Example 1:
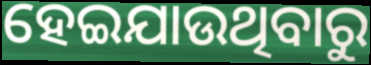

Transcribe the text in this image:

ହେଇଯାଉଥିବାରୁ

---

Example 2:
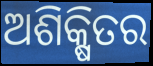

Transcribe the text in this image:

ଅଶିକ୍ଷିତର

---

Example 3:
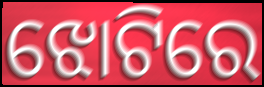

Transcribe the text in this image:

ଝୋଟିରେ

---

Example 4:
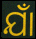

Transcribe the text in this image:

ଯାଁ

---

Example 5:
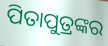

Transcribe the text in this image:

ପିତାପୁତ୍ରଙ୍କର